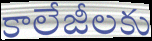
కాలేజీలకు